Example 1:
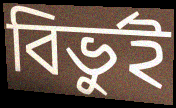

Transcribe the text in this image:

বির্ভুই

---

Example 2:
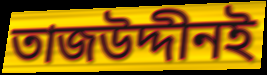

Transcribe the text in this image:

তাজউদ্দীনই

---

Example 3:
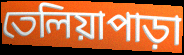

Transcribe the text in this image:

তেলিয়াপাড়া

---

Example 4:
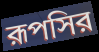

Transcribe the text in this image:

রূপসির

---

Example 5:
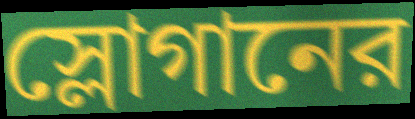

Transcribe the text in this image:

স্লোগানের